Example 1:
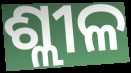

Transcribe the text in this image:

ଶ୍ଲୀଳ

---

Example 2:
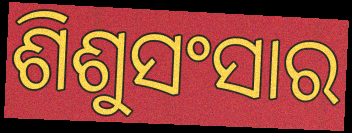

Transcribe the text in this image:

ଶିଶୁସଂସାର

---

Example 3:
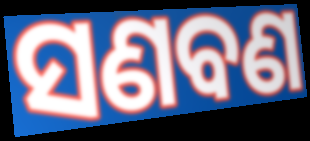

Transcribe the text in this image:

ସଣବଣ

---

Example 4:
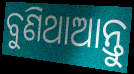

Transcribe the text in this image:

ବୁଣିଥାଆନ୍ତୁ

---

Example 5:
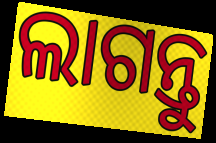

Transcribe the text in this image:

ଲାଗନ୍ତୁ